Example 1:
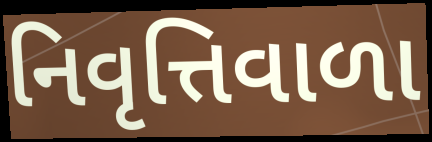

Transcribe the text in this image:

નિવૃત્તિવાળા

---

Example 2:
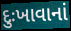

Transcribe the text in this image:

દુઃખાવાનાં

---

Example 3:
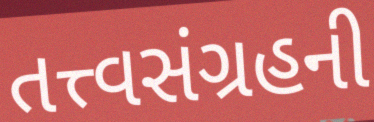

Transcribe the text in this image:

તત્ત્વસંગ્રહની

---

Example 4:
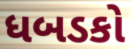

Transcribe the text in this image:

ધબડકો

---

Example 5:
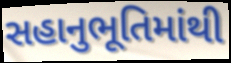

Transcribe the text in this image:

સહાનુભૂતિમાંથી